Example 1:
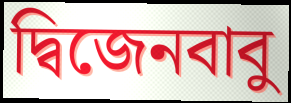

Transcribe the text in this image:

দ্বিজেনবাবু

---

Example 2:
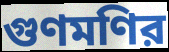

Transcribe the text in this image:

গুণমণির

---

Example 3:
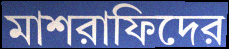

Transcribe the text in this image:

মাশরাফিদের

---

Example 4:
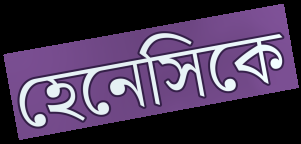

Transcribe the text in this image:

হেনেসিকে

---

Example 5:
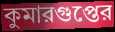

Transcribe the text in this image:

কুমারগুপ্তের